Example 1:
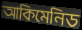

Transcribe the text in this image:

আকিমেনিড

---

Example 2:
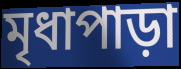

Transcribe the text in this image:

মৃধাপাড়া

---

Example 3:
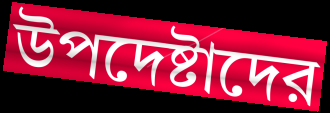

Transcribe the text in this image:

উপদেষ্টাদের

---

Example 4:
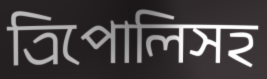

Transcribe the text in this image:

ত্রিপোলিসহ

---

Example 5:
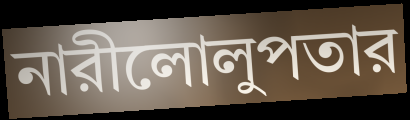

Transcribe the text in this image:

নারীলোলুপতার